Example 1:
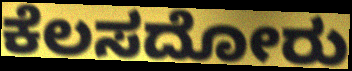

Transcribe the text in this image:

ಕೆಲಸದೋರು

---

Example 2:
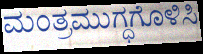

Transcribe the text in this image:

ಮಂತ್ರಮುಗ್ಧಗೊಳಿಸಿ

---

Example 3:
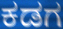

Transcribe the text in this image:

ಕಡಗ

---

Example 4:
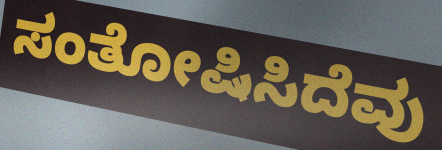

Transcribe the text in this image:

ಸಂತೋಷಿಸಿದೆವು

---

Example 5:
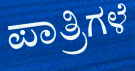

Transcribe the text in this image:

ಪಾತ್ರಿಗಳೆ